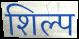
शिल्प